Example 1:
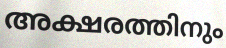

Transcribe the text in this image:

അക്ഷരത്തിനും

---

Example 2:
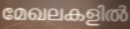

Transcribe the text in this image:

മേഖലകളിൽ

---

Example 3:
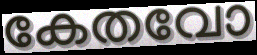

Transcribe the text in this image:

കേതവോ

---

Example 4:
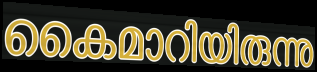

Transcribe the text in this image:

കൈമാറിയിരുന്നു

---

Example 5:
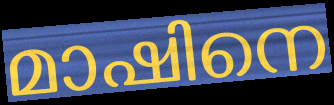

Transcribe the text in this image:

മാഷിനെ